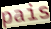
pais